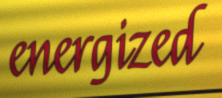
energized